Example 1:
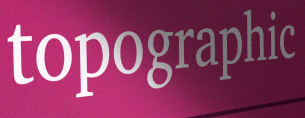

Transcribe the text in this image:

topographic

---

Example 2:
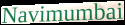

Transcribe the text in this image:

Navimumbai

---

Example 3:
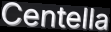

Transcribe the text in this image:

Centella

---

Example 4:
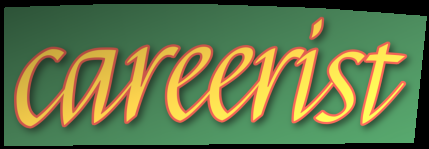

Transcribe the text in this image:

careerist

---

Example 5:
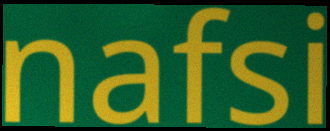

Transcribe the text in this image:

nafsi